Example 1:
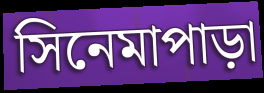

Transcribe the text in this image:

সিনেমাপাড়া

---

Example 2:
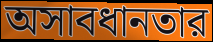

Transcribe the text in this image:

অসাবধানতার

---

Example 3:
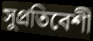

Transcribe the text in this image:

সুপ্রতিবেশী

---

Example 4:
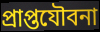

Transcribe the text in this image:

প্রাপ্তযৌবনা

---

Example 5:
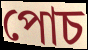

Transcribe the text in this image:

পোচ